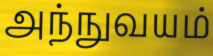
அந்நுவயம்